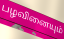
பழவினையும்